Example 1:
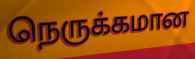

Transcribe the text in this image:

நெருக்கமான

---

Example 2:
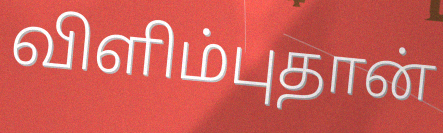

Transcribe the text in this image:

விளிம்புதான்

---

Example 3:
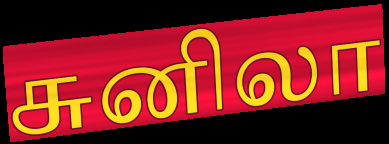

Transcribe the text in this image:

சுனிலா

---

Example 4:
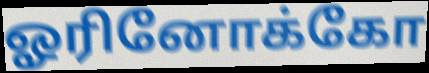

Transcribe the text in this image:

ஓரினோக்கோ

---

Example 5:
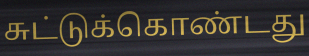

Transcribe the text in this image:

சுட்டுக்கொண்டது